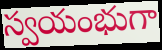
స్వయంభుగా